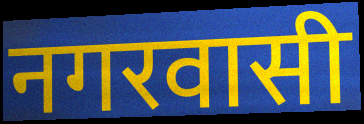
नगरवासी